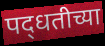
पद्धतीच्या